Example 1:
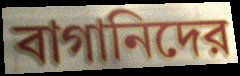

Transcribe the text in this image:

বাগানিদের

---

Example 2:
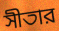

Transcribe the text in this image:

সীতার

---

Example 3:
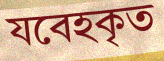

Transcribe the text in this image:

যবেহকৃত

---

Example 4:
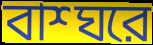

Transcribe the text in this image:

বাশ্ঘরে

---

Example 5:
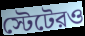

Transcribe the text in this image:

স্টেটেরও